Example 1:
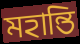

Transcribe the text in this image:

মহান্তি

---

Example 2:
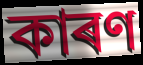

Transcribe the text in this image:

কাৰণ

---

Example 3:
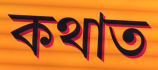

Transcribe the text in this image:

কথাত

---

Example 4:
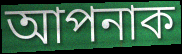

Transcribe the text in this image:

আপনাক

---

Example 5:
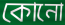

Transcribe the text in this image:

কোনো